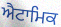
ਐਟਾਮਿਕ